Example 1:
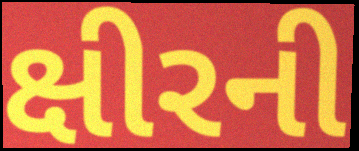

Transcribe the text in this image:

ક્ષીરની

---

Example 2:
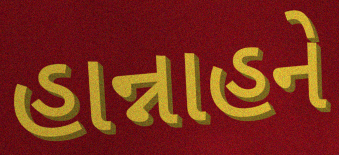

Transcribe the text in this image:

હાન્નાહને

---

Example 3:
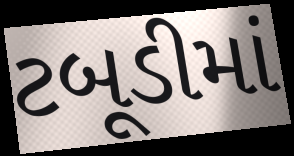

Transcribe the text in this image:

ટબૂડીમાં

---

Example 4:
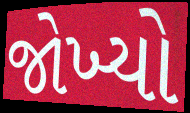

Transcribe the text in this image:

જોખ્યો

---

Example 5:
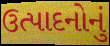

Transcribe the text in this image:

ઉત્પાદનોનું